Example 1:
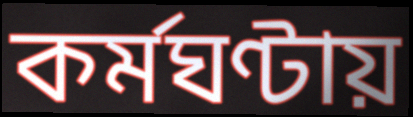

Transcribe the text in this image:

কর্মঘণ্টায়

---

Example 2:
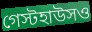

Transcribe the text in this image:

গেস্টহাউসও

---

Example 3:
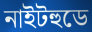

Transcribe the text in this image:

নাইটহুডে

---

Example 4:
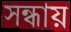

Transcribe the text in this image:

সন্ধায়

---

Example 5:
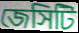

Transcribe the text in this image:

জেসিটি